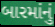
બારમાંનું